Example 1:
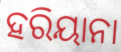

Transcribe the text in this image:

ହରିୟାନା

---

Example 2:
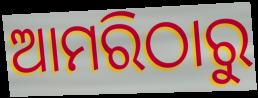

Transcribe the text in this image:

ଆମରିଠାରୁ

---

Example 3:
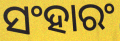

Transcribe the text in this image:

ସଂହାରଂ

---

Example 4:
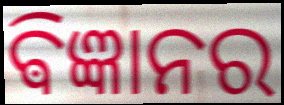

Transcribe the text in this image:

ଵିଜ୍ଞାନର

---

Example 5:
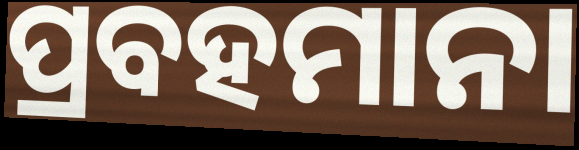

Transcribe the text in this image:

ପ୍ରବହମାନା